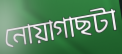
নোয়াগাছটা